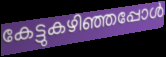
കേട്ടുകഴിഞ്ഞപ്പോൾ